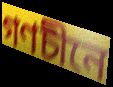
গণচীনে